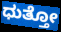
ಧುತ್ತೋ